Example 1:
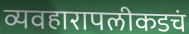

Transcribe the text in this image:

व्यवहारापलीकडचं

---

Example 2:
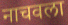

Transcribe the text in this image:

नाचवला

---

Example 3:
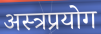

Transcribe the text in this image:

अस्त्रप्रयोग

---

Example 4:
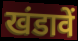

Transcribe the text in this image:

खंडावें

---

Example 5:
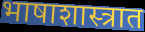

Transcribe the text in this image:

भाषाशास्त्रात